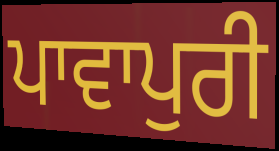
ਪਾਵਾਪੁਰੀ